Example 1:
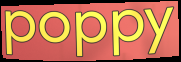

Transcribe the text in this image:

poppy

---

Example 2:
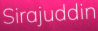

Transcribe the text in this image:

Sirajuddin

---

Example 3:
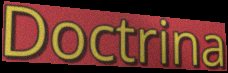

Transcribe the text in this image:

Doctrina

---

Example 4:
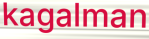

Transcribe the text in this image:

kagalman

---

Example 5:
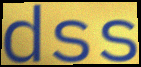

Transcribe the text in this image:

dss